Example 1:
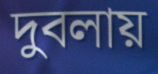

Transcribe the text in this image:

দুবলায়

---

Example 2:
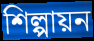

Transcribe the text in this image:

শিল্পায়ন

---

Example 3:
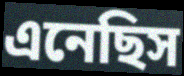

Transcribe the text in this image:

এনেছিস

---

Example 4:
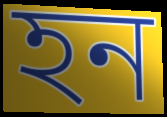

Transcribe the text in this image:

হন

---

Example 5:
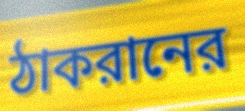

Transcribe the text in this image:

ঠাকরানের